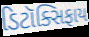
ડિટૉક્સિફાય